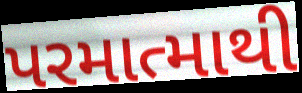
પરમાત્માથી